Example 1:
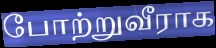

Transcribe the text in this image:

போற்றுவீராக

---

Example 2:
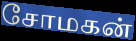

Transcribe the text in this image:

சோமகன்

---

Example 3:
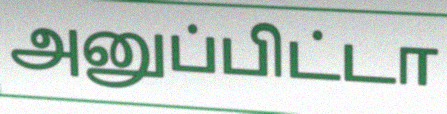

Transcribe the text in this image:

அனுப்பிட்டா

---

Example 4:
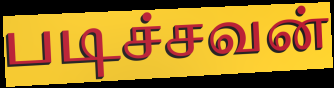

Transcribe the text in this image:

படிச்சவன்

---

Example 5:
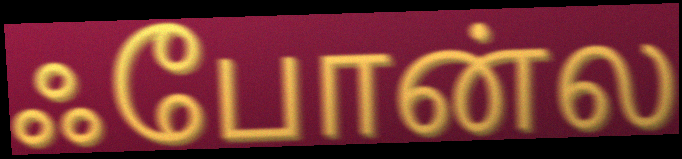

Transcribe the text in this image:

ஃபோன்ல